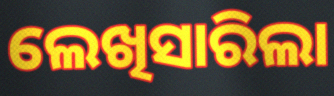
ଲେଖିସାରିଲା